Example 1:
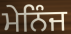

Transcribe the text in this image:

ਮੇਨਿੰਜ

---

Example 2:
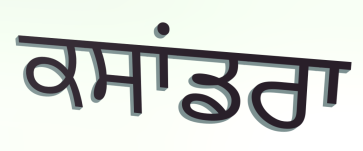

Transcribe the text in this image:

ਕਸਾਂਡਰਾ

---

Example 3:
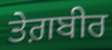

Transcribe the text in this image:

ਤੇਗ਼ਬੀਰ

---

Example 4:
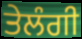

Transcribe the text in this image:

ਤੇਲੰਗੀ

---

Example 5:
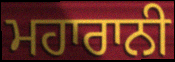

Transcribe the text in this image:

ਮਹਾਰਾਨੀ